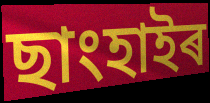
ছাংহাইৰ